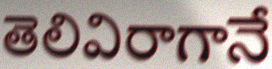
తెలివిరాగానే